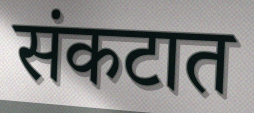
संकटात